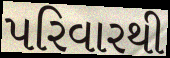
પરિવારથી